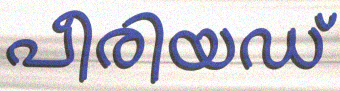
പീരിയഡ്